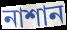
নাশান